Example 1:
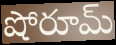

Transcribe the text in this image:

షోరూమ్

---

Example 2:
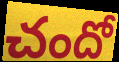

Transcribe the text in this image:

చందో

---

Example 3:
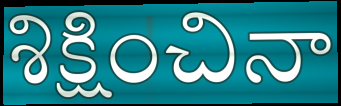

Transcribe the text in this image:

శిక్షించినా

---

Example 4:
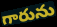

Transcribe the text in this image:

గారును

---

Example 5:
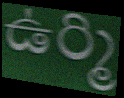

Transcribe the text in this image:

ఉర్మి